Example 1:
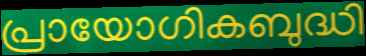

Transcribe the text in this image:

പ്രായോഗികബുദ്ധി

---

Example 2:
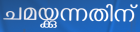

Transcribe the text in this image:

ചമയ്ക്കുന്നതിന്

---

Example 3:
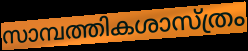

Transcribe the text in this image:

സാമ്പത്തികശാസ്ത്രം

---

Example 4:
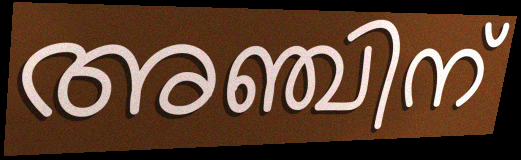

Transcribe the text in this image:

അഞ്ചിന്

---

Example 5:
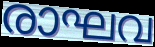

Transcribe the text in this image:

രാഘവ